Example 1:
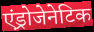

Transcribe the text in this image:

एंड्रोजेनेटिक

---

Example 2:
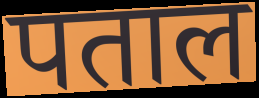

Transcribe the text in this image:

पताल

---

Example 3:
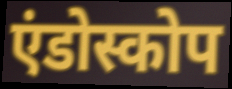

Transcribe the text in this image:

एंडोस्कोप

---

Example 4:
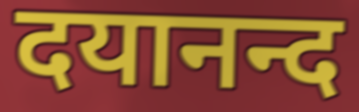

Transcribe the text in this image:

दयानन्द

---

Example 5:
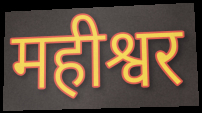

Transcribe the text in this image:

महीश्वर